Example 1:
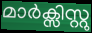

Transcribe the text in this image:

മാർക്സിസ്റ്റു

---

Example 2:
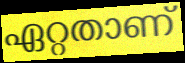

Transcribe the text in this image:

ഏറ്റതാണ്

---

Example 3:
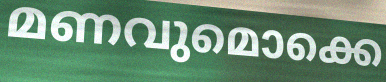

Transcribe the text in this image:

മണവുമൊക്കെ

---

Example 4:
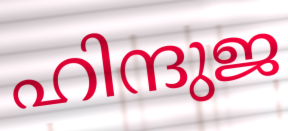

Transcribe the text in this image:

ഹിന്ദുജ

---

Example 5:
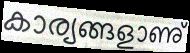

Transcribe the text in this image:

കാര്യങ്ങളാണു്